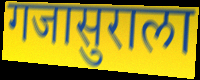
गजासुराला